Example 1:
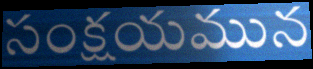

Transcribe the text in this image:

సంక్షయమున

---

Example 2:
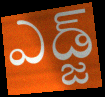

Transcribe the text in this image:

ఎడ్జ్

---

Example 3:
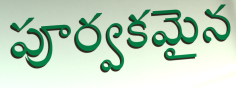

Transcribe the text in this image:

పూర్వకమైన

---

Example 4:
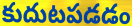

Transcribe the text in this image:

కుదుటపడడం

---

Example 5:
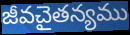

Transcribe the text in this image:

జీవచైతన్యము